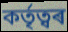
কৰ্তৃত্বৰ